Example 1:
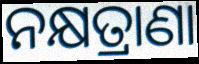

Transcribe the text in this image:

ନକ୍ଷତ୍ରାଣା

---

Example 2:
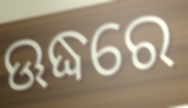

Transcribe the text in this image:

ଊଦ୍ଧରେ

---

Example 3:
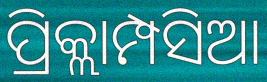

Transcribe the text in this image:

ପ୍ରିକ୍ଲାମ୍ପସିଆ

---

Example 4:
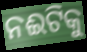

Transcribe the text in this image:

ନଈଟିକୁ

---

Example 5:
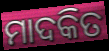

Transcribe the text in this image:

ମାଦକିତ